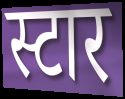
स्टार